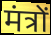
मंत्रों